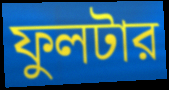
ফুলটার